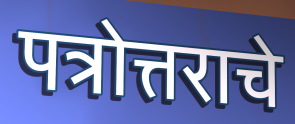
पत्रोत्तराचे